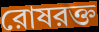
রোষরক্ত